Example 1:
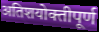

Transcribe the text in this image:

अतिशयोक्‍तीपूर्ण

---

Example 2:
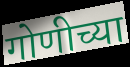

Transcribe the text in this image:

गोणीच्या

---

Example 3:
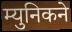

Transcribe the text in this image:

म्युनिकने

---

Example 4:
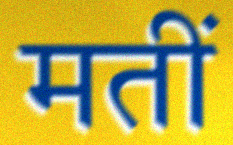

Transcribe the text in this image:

मतीं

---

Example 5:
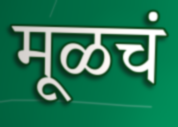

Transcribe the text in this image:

मूळचं